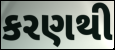
કરણથી